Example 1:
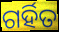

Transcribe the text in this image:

ଗର୍ହିତ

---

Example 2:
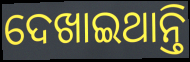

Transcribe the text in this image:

ଦେଖାଇଥାନ୍ତି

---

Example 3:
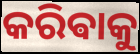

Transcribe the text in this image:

କରିଵାକୁ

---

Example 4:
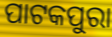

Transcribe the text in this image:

ପାଟକପୁରା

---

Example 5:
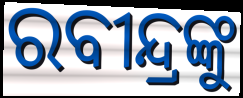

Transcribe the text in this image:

ରବୀନ୍ଦ୍ରଙ୍କୁ